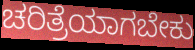
ಚರಿತ್ರೆಯಾಗಬೇಕು